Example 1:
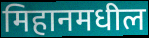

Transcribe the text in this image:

मिहानमधील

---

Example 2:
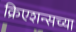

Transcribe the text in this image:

क्रिएशन्सच्या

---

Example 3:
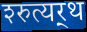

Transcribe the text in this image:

श्रुत्यर्थ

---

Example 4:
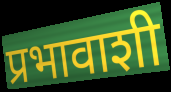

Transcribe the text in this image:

प्रभावाशी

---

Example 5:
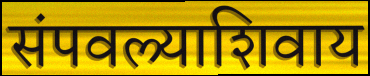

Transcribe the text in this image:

संपवल्याशिवाय